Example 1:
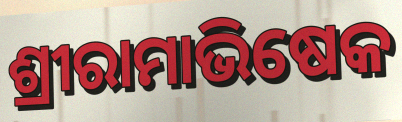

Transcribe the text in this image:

ଶ୍ରୀରାମାଭିଷେକ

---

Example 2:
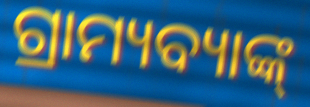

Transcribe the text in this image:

ଗ୍ରାମ୍ୟବ୍ୟାଙ୍କ୍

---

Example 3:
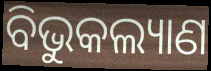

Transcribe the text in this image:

ବିଭୁକଲ୍ୟାଣ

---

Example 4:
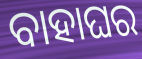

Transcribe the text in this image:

ବାହାଘର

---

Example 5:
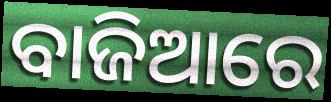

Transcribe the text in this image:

ବାଜିଆରେ